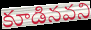
కూడినవని